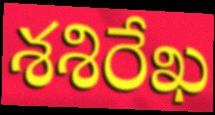
శశిరేఖ